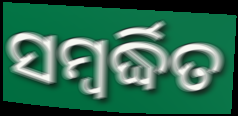
ସମ୍ବର୍ଦ୍ଧିତ